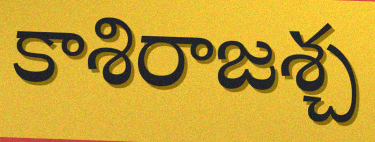
కాశిరాజశ్చ